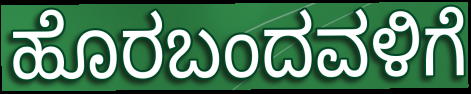
ಹೊರಬಂದವಳಿಗೆ